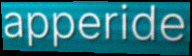
apperide